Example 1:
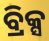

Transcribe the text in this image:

ବ୍ରିକ୍ସ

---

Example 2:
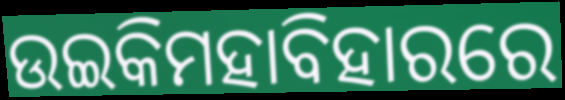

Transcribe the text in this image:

ଉଇକିମହାବିହାରରେ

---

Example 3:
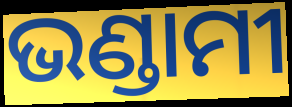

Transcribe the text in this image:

ଭଣ୍ଡାମୀ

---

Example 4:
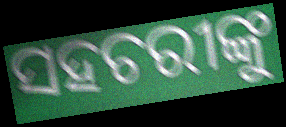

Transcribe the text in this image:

ସହଚରୀଙ୍କୁ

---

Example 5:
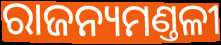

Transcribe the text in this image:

ରାଜନ୍ୟମଣ୍ତଳୀ